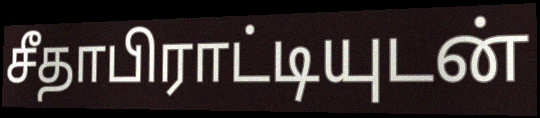
சீதாபிராட்டியுடன்